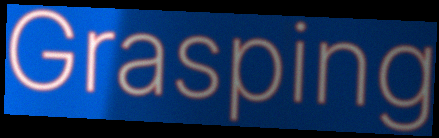
Grasping